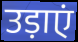
उड़ाएं